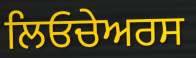
ਲਿਓਚੇਅਰਸ